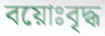
বয়োঃবৃদ্ধ